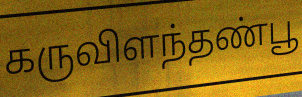
கருவிளந்தண்பூ